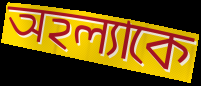
অহল্যাকে